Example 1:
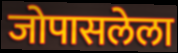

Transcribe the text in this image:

जोपासलेला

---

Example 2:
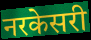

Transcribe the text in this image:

नरकेसरी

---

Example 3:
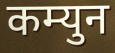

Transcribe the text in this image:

कम्युन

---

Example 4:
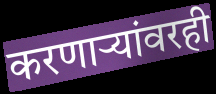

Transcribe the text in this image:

करणाऱ्यांवरही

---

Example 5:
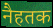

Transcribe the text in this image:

नैहतक